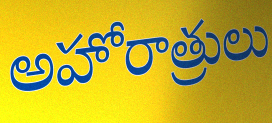
అహోరాత్రులు